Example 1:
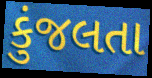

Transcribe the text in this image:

કુંજલતા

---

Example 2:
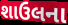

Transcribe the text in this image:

શાઉલના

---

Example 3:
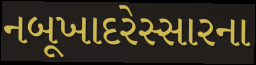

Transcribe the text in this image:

નબૂખાદરેસ્સારના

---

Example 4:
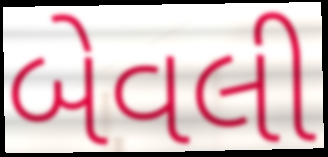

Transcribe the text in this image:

બેવલી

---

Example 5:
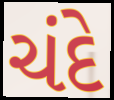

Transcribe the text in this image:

ચંદે